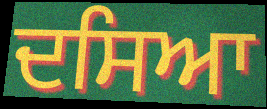
ਦਸਿਆ